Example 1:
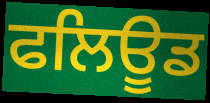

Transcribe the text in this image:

ਫਲਿਊਡ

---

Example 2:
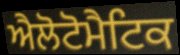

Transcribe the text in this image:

ਐਲੋਟੋਮੈਟਿਕ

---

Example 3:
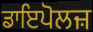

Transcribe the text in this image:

ਡਾਇਪੋਲਜ਼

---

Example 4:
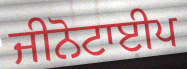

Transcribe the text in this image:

ਜੀਨੋਟਾਈਪ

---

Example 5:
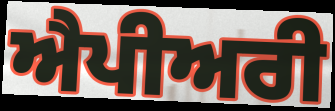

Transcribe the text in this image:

ਐਪੀਅਰੀ